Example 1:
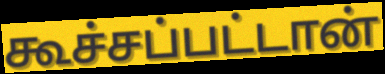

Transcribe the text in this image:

கூச்சப்பட்டான்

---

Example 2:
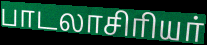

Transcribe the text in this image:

பாடலாசிரியர்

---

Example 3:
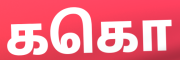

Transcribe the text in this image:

ககொ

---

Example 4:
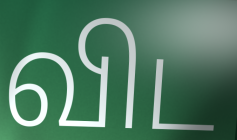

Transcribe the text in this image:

விட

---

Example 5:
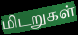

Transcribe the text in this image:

மிடறுகள்